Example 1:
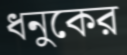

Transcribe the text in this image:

ধনুকের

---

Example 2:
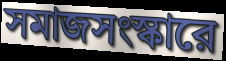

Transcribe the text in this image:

সমাজসংস্কারে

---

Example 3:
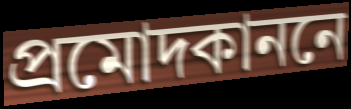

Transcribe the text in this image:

প্রমোদকাননে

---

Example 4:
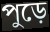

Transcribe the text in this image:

পুড়ে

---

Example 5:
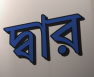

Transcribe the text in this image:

দ্বার